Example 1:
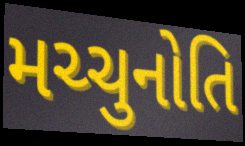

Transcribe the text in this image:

મચ્ચુનોતિ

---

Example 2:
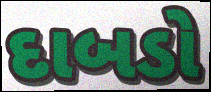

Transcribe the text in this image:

દાબડો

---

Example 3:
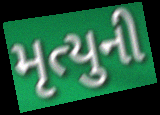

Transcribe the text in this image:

મૃત્યુની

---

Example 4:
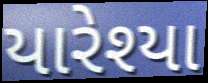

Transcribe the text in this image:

યારેશ્યા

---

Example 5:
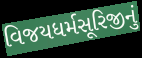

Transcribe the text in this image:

વિજયધર્મસૂરિજીનું